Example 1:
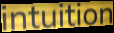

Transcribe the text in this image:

intuition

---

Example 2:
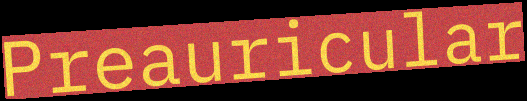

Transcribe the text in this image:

Preauricular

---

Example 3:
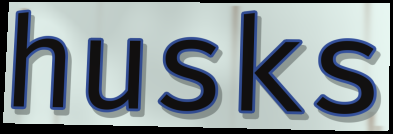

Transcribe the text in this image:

husks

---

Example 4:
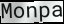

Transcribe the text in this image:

Monpa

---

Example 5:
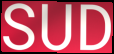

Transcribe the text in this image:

SUD